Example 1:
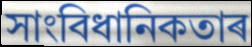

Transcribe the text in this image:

সাংবিধানিকতাৰ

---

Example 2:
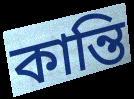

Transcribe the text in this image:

কান্তি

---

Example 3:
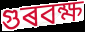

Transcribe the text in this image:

গুৰবক্ষ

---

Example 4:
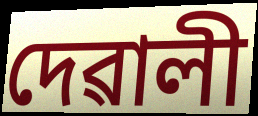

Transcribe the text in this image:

দেৱালী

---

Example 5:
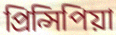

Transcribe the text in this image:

প্ৰিন্সিপিয়া